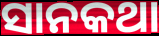
ସାନକଥା